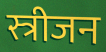
स्त्रीजन